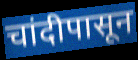
चांदीपासून